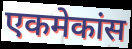
एकमेकांस